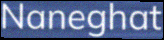
Naneghat